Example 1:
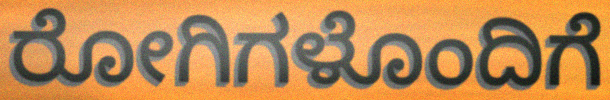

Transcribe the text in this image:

ರೋಗಿಗಳೊಂದಿಗೆ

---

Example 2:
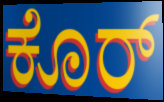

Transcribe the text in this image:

ಕೊರ್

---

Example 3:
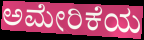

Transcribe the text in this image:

ಅಮೇರಿಕೆಯ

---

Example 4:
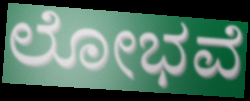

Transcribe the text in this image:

ಲೋಭವೆ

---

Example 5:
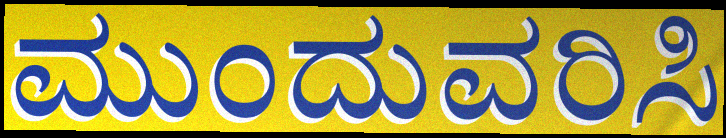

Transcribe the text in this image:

ಮುಂದುವರಿಸಿ